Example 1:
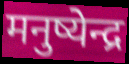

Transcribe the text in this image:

मनुष्येन्द्र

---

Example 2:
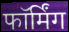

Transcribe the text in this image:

फॉर्मिंग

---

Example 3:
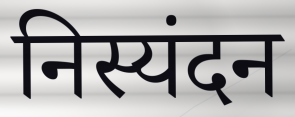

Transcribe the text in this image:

निस्यंदन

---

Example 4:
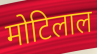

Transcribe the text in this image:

मोटिलाल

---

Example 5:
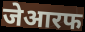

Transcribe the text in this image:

जेआरफ